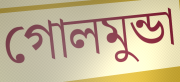
গোলমুন্ডা